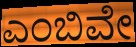
ಎಂಬಿವೇ